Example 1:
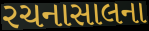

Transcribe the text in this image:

રચનાસાલના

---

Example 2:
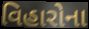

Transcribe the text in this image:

વિહારોના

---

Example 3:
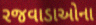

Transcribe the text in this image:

રજવાડાઓના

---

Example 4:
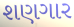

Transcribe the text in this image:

શણગાર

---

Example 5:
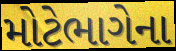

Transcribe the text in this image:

મોટેભાગેના